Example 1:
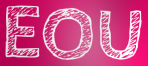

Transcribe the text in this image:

EOU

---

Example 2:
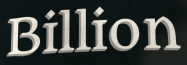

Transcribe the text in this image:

Billion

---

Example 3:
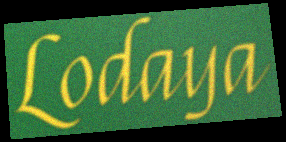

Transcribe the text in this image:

Lodaya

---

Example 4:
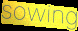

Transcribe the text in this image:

sowing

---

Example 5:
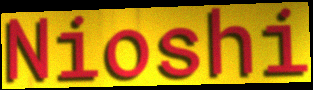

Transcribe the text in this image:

Nioshi